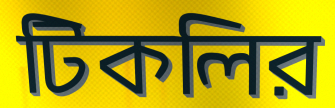
টিকলির